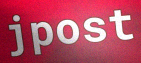
jpost